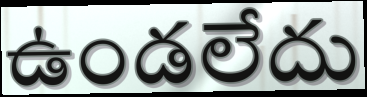
ఉండలేదు